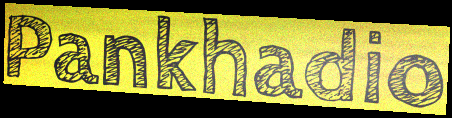
Pankhadio